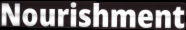
Nourishment